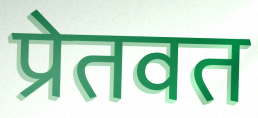
प्रेतवत